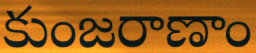
కుంజరాణాం